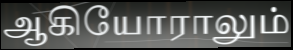
ஆகியோராலும்